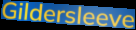
Gildersleeve